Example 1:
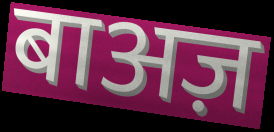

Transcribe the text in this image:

बाअज़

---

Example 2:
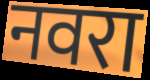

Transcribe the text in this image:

नवरा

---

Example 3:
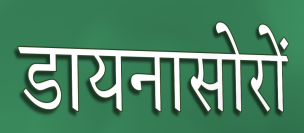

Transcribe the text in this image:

डायनासोरों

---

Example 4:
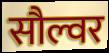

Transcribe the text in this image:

सौल्वर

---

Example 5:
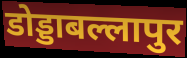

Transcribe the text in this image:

डोड्डाबल्लापुर